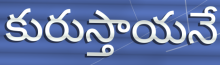
కురుస్తాయనే